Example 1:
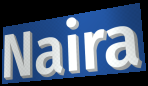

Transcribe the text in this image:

Naira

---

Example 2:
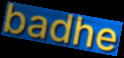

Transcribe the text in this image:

badhe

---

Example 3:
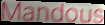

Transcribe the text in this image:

Mandous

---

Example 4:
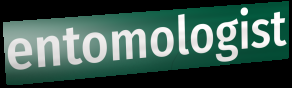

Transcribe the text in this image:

entomologist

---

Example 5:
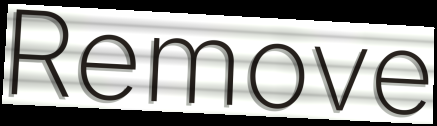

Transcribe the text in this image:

Remove